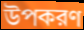
উপকরণ